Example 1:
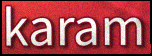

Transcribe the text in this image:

karam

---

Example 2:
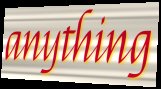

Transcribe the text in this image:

anything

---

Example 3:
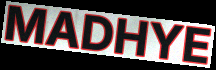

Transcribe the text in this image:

MADHYE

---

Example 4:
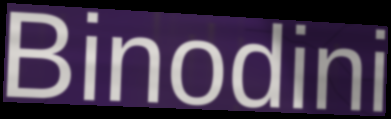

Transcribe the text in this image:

Binodini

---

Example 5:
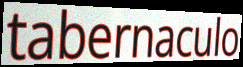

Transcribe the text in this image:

tabernaculo